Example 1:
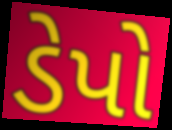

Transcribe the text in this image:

ડેપો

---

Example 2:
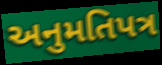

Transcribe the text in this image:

અનુમતિપત્ર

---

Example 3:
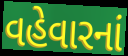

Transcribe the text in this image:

વહેવારનાં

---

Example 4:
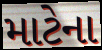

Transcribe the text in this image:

માટેના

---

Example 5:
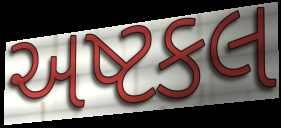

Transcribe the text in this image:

અષ્ટકલ